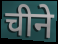
चीने